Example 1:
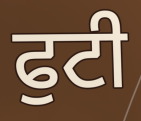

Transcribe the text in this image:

ਫੁਟੀ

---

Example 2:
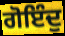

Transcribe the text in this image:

ਗੋਇੰਦੁ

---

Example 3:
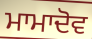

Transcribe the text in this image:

ਮਾਮਾਦੋਵ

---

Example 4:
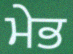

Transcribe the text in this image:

ਮੇਭ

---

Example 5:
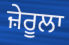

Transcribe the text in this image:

ਜ਼ੇਰੂਲਾ